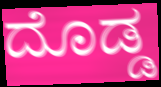
ದೊಡ್ಡ